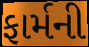
ફાર્મની